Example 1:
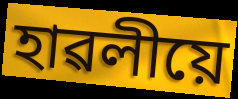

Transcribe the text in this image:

হাৱলীয়ে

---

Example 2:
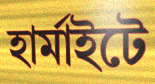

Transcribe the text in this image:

হাৰ্মাইটে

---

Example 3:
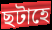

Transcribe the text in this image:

ছটাহে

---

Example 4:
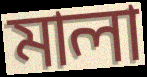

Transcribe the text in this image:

মালা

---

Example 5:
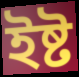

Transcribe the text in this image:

ইষ্ট